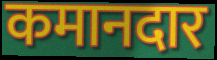
कमानदार